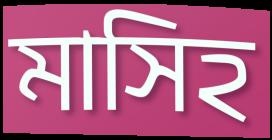
মাসিহ